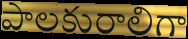
పాలకురాలిగా